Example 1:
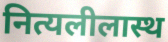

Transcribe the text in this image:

नित्यलीलास्थ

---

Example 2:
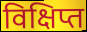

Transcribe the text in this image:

विक्षिप्त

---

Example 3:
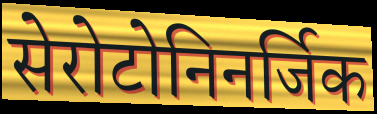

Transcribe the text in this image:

सेरोटोनिनर्जिक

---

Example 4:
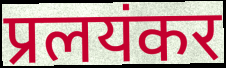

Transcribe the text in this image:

प्रलयंकर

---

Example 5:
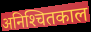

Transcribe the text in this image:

अनिश्‍चितकाल